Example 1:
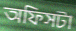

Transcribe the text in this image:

অফিসটা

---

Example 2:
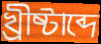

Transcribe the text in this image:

খ্রীষ্টাব্দে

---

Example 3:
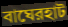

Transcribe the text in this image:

বাঘেরহাট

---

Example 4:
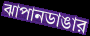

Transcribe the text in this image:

ঝাপানডাঙার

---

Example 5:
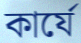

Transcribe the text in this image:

কার্যে